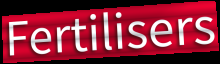
Fertilisers